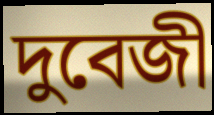
দুবেজী